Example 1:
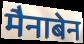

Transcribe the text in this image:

मैनाबेन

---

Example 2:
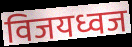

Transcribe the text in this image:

विजयध्वज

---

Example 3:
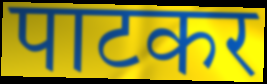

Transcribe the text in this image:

पाटकर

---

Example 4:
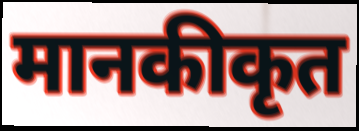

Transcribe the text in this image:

मानकीकृत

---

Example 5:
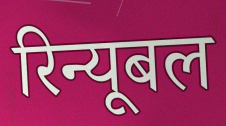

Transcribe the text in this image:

रिन्यूबल